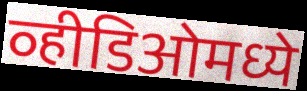
व्हीडिओमध्ये